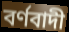
বর্ণবাদী